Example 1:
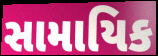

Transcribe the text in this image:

સામાયિક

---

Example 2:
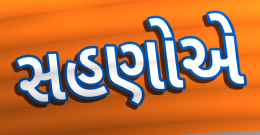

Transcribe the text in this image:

સહણોએ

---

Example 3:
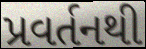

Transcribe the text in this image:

પ્રવર્તનથી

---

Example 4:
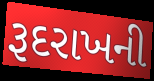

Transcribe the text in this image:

રૂદરાખની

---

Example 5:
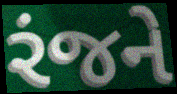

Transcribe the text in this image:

રંજને